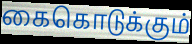
கைகொடுக்கும்